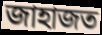
জাহাজত